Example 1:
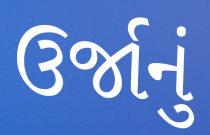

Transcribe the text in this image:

ઉર્જાનું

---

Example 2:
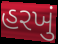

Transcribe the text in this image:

હરખું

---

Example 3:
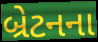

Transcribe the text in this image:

બ્રેટનના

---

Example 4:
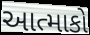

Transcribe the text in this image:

આત્માકો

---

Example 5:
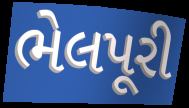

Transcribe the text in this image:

ભેલપૂરી